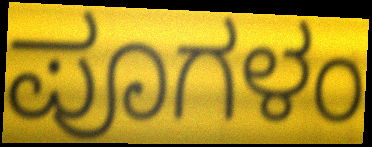
ಪೂಗಳಂ